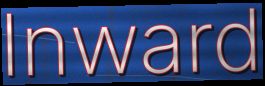
Inward